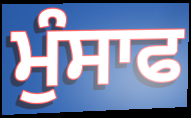
ਮੁੰਸਾਫ